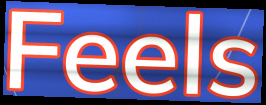
Feels